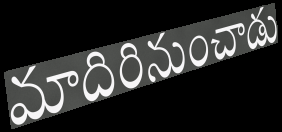
మాదిరినుంచాడు